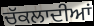
ਚੱਕਲਾਦੀਆਂ